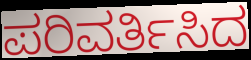
ಪರಿವರ್ತಿಸಿದ